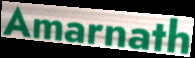
Amarnath